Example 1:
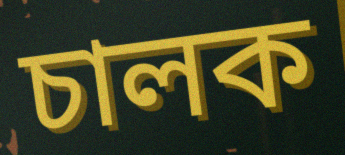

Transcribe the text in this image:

চালক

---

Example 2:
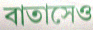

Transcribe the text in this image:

বাতাসেও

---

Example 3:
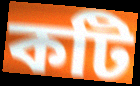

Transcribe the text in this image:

কটি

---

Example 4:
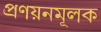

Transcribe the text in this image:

প্রণয়নমূলক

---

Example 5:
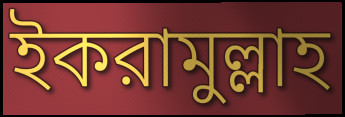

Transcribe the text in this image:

ইকরামুল্লাহ